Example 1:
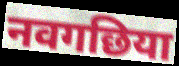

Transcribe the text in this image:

नवगछिया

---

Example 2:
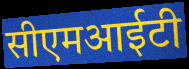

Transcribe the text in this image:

सीएमआईटी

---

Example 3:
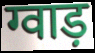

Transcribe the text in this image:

ग्वाड़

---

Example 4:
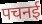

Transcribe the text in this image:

पचनई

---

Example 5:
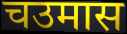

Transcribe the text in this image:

चउमास